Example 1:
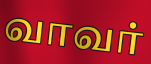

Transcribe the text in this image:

வாவர்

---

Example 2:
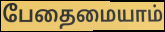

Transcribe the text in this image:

பேதைமையாம்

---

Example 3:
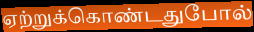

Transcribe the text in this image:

ஏற்றுக்கொண்டதுபோல்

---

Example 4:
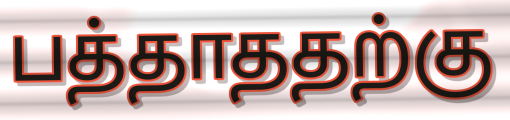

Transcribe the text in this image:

பத்தாததற்கு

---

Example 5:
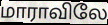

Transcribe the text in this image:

மாராவிலே